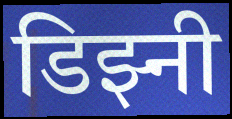
डिझ्नी